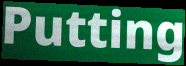
Putting